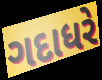
ગદાધરે